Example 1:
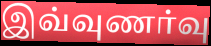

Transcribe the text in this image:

இவ்வுணர்வு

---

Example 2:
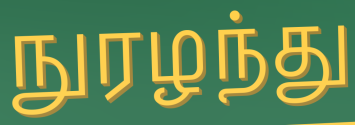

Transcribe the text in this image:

நுரழந்து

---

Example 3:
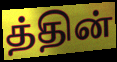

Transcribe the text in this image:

த்தின்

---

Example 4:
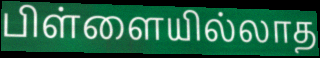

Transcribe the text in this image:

பிள்ளையில்லாத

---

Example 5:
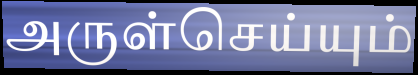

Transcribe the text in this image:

அருள்செய்யும்